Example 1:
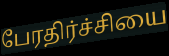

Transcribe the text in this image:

பேரதிர்ச்சியை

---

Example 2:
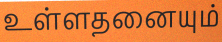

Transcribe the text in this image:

உள்ளதனையும்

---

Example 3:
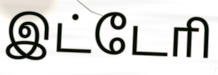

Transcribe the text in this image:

இட்டேரி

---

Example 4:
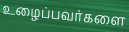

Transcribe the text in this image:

உழைப்பவர்களை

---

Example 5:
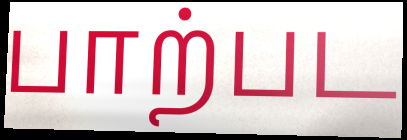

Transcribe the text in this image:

பாற்பட